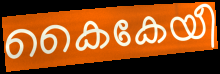
കൈകേയീ